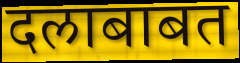
दलाबाबत